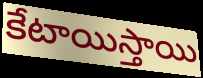
కేటాయిస్తాయి